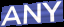
ANY